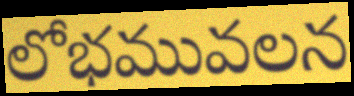
లోభమువలన